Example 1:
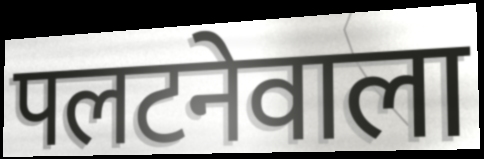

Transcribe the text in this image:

पलटनेवाला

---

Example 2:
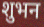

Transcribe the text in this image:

शुभन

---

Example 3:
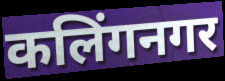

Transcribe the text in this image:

कलिंगनगर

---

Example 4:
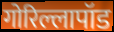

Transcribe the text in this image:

गोरिल्लापॉड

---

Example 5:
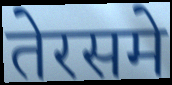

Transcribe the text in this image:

तेरसमे